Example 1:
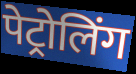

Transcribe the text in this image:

पेट्रोलिंग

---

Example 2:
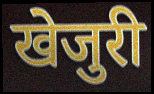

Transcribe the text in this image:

खेजुरी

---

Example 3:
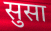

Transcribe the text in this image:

सुसा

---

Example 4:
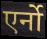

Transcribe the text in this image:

एर्नो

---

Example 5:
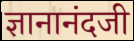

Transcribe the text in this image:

ज्ञानानंदजी